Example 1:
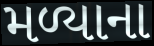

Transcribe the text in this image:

મળ્યાના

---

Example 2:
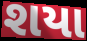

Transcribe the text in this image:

શયા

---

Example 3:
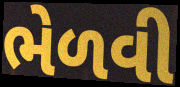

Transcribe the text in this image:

ભેળવી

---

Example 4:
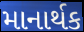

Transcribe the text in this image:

માનાર્થક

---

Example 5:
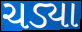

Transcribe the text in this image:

ચડ્યા